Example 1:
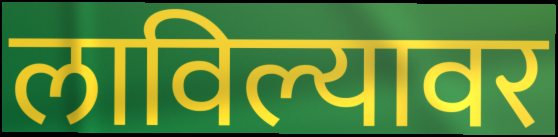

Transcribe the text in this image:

लाविल्यावर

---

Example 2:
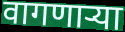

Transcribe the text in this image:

वागणाऱ्या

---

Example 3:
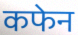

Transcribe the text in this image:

कफेन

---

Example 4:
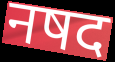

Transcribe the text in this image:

नषद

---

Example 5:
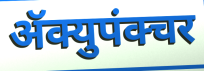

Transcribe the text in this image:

ॲक्युपंक्चर